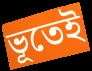
ভূতেই